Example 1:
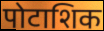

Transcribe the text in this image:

पोटाशिक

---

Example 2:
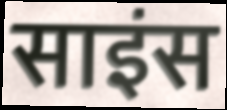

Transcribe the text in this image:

साइंस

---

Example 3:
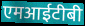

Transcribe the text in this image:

एमआईटीबी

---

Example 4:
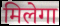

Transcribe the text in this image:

मिलेगा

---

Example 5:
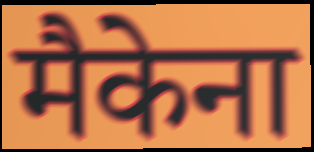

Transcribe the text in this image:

मैकेना